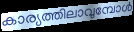
കാര്യത്തിലാവുമ്പോൾ